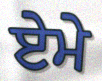
ਏਮੇ